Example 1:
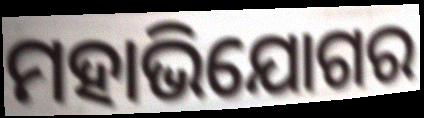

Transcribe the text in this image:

ମହାଭିଯୋଗର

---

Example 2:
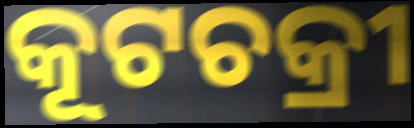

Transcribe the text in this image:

କୂଟଚକ୍ରୀ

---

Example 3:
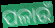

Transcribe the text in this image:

ପଳାଉଁ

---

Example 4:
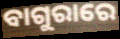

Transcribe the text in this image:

ବାଗୁରାରେ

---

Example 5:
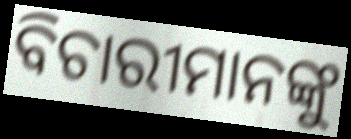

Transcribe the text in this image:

ବିଚାରୀମାନଙ୍କୁ